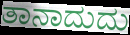
ತಾನಾದುದು